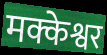
मक्केश्वर